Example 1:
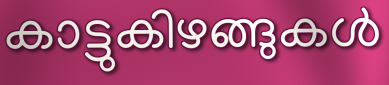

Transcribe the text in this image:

കാട്ടുകിഴങ്ങുകൾ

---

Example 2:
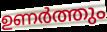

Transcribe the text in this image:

ഉണർത്തും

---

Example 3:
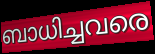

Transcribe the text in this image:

ബാധിച്ചവരെ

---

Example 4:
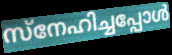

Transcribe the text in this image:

സ്നേഹിച്ചപ്പോൾ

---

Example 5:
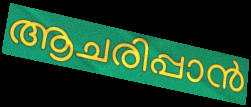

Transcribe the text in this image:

ആചരിപ്പാൻ